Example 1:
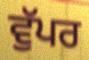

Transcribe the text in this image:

ਵੁੱਪਰ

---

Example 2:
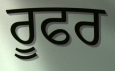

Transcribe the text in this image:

ਰੂਫਰ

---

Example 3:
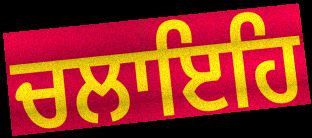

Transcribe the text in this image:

ਚਲਾਇਹਿ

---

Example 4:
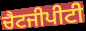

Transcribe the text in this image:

ਚੈਟਜੀਪੀਟੀ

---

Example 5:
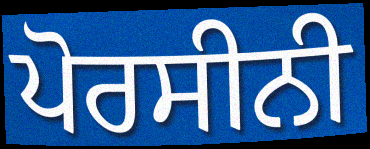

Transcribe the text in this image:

ਪੋਰਸੀਨੀ